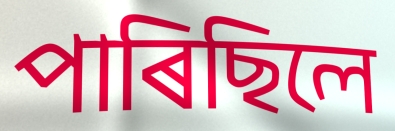
পাৰিছিলে